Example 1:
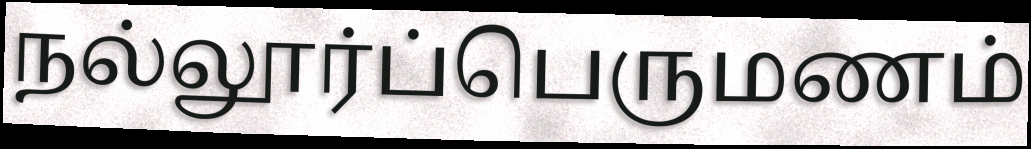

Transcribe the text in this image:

நல்லூர்ப்பெருமணம்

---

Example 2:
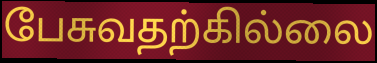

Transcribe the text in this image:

பேசுவதற்கில்லை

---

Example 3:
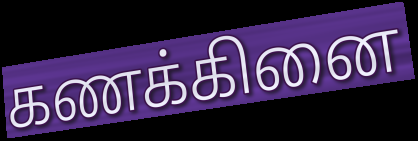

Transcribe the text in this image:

கணக்கினை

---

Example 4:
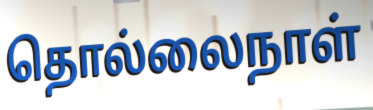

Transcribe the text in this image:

தொல்லைநாள்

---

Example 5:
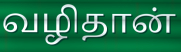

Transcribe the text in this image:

வழிதான்